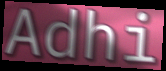
Adhi